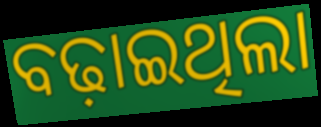
ବଢ଼ାଇଥିଲା